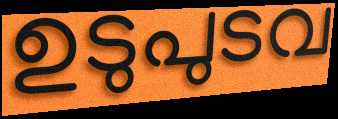
ഉടുപുടവ